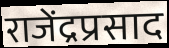
राजेंद्रप्रसाद